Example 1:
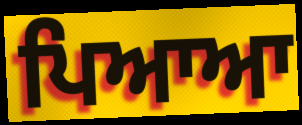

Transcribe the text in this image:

ਪਿਆਆ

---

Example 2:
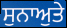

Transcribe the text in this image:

ਸੁਨਾਅੁਤੇ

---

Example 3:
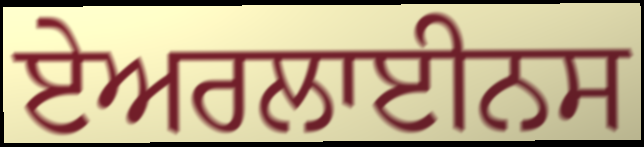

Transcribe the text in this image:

ਏਅਰਲਾਈਨਸ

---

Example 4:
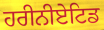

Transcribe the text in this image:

ਹਰੀਨੀਏਟਿਡ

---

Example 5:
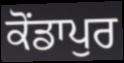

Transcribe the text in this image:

ਕੋਂਡਾਪੁਰ